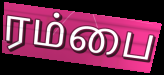
ரம்பை